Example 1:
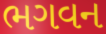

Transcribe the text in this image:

ભગવન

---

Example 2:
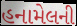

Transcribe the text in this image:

હનામેલની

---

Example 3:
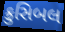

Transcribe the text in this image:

ક્રુસિબલ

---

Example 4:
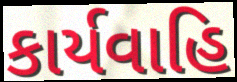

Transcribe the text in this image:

કાર્યવાહિ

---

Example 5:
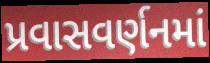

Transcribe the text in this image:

પ્રવાસવર્ણનમાં